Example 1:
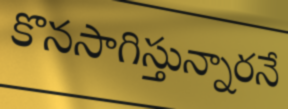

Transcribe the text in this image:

కొనసాగిస్తున్నారనే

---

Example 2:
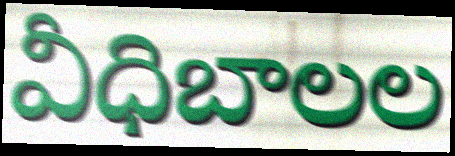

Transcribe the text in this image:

వీధిబాలల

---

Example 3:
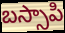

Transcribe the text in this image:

బస్సాపి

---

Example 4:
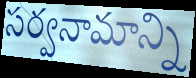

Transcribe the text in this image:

సర్వనామాన్ని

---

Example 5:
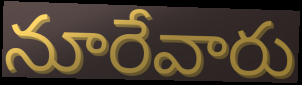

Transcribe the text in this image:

నూరేవారు